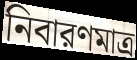
নিবারণমাত্র